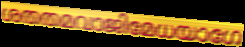
ശതതമവാജിമേധയാഗേ